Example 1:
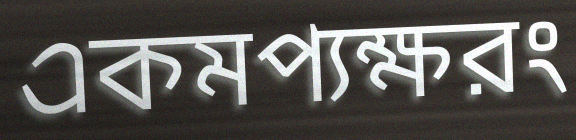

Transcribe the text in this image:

একমপ্যক্ষরং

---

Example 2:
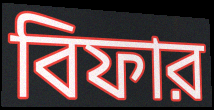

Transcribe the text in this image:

বিফার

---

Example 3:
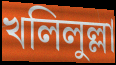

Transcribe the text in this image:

খলিলুল্লা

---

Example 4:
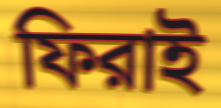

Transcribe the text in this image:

ফিরাই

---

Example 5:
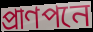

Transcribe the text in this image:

প্রাণপনে